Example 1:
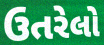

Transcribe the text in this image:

ઉતરેલો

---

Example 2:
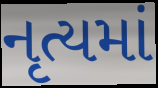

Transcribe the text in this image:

નૃત્યમાં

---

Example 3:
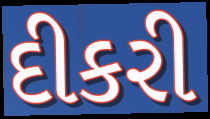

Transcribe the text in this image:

દીકરી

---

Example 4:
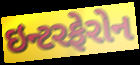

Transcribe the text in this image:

ઇન્ટરફેરોન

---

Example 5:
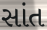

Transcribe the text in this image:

સાંત